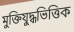
মুক্তিযুদ্ধভিত্তিক